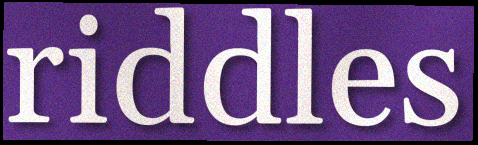
riddles